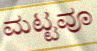
ಮಟ್ಟವೂ